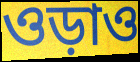
ওড়াও